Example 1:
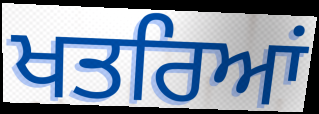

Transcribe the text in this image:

ਖਤਰਿਆਂ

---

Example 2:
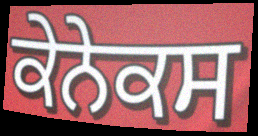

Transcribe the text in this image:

ਕੇਨੇਕਸ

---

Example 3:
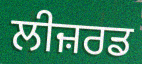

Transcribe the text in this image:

ਲੀਜ਼ਰਡ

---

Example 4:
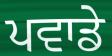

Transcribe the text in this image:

ਪਵਾਡੇ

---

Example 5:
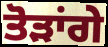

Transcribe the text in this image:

ਤੋੜਾਂਗੇ